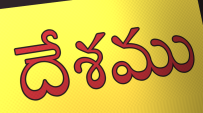
దేశము